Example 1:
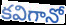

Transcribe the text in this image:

కవిగానో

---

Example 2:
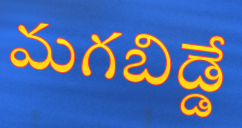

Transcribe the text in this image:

మగబిడ్డే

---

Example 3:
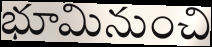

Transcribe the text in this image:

భూమినుంచి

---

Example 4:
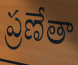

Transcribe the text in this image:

ప్రణేతా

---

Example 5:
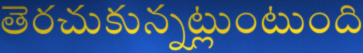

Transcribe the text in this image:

తెరచుకున్నట్లుంటుంది